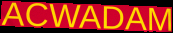
ACWADAM